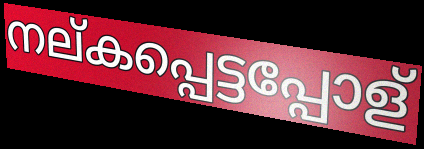
നല്കപ്പെട്ടപ്പോള്